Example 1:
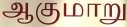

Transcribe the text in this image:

ஆகுமாறு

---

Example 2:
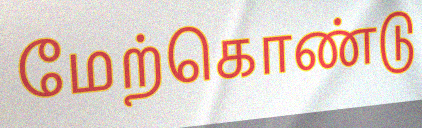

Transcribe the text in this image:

மேற்கொண்டு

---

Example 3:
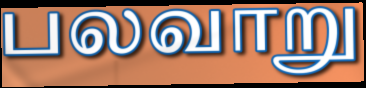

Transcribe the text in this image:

பலவாறு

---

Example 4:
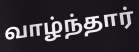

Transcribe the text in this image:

வாழ்ந்தார்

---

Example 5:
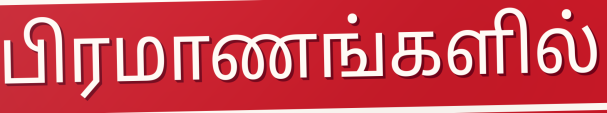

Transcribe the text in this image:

பிரமாணங்களில்